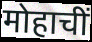
मोहाचीं